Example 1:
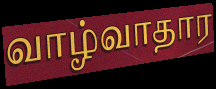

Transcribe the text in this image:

வாழ்வாதார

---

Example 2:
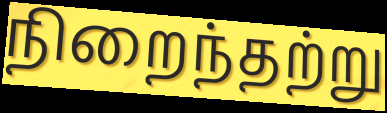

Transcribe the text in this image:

நிறைந்தற்று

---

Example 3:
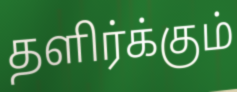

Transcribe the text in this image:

தளிர்க்கும்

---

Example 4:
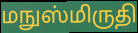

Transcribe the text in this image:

மநுஸ்மிருதி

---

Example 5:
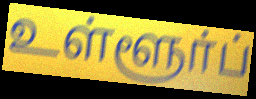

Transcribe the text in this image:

உள்ளூர்ப்